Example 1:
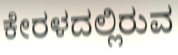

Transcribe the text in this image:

ಕೇರಳದಲ್ಲಿರುವ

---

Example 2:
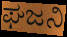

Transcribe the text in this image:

ಘಜನಿ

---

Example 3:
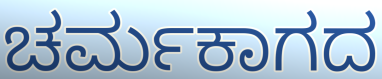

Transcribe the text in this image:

ಚರ್ಮಕಾಗದ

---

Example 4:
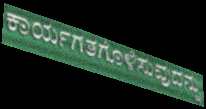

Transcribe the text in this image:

ಕಾರ್ಯಗತಗೊಳಿಸುವುದನ್ನು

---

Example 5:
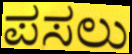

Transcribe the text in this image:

ಪಸಲು